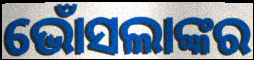
ଭୋଁସଲାଙ୍କର